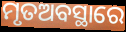
ମୃତଅବସ୍ଥାରେ